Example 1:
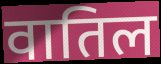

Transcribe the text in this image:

वातिल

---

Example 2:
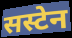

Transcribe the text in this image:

सस्टेन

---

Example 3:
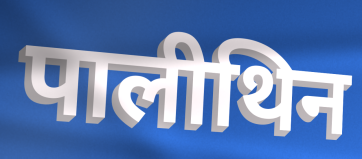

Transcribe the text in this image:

पालीथिन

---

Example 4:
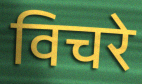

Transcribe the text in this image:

विचरे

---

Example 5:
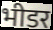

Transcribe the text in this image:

भीडर